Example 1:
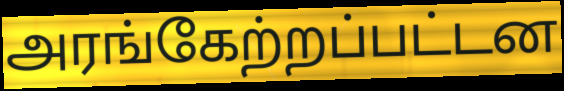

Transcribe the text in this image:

அரங்கேற்றப்பட்டன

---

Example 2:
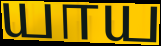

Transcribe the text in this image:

யாய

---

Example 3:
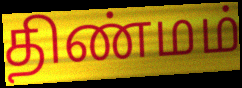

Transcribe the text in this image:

திண்மம்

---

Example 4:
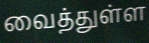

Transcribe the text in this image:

வைத்துள்ள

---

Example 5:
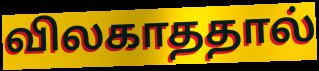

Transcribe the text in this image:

விலகாததால்